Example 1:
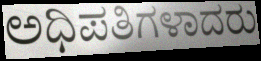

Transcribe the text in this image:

ಅಧಿಪತಿಗಳಾದರು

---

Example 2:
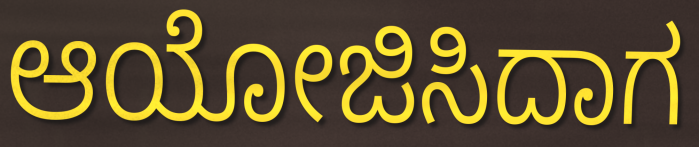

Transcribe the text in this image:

ಆಯೋಜಿಸಿದಾಗ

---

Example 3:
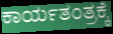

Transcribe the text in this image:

ಕಾರ್ಯತಂತ್ರಕ್ಕೆ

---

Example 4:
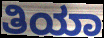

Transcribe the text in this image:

ತಿಯಾ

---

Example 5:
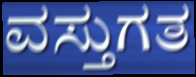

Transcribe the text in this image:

ವಸ್ತುಗತ